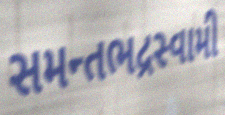
સમન્તભદ્રસ્વામી